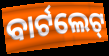
ବାର୍ଟଲେଟ୍